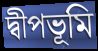
দ্বীপভূমি